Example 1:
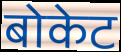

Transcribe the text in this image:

बोकेट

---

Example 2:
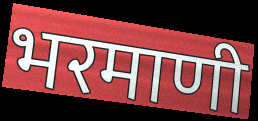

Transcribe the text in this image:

भरमाणी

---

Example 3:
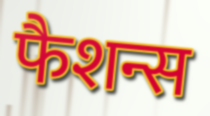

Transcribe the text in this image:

फैशन्स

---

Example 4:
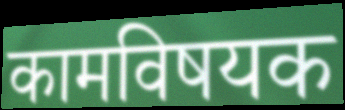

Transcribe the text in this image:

कामविषयक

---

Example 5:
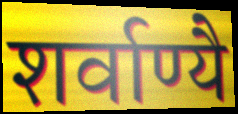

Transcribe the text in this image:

शर्वाण्यै